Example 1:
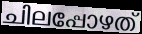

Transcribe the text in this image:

ചിലപ്പോഴത്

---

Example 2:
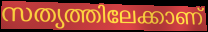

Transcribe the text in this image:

സത്യത്തിലേക്കാണ്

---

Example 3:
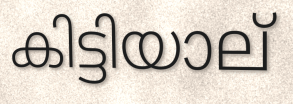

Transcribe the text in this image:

കിട്ടിയാല്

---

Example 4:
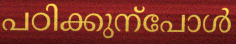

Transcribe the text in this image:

പഠിക്കുന്പോൾ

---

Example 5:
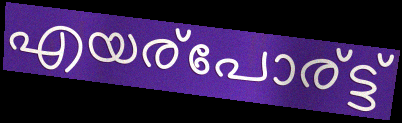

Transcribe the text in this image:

എയര്പോര്ട്ട്